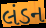
લંડન